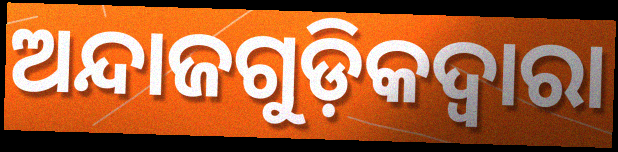
ଅନ୍ଦାଜଗୁଡ଼ିକଦ୍ୱାରା